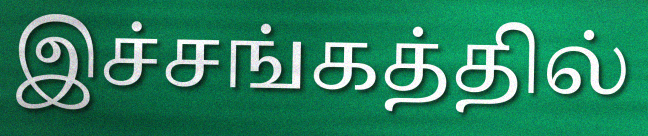
இச்சங்கத்தில்